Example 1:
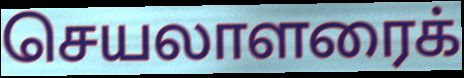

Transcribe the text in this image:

செயலாளரைக்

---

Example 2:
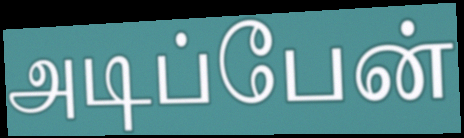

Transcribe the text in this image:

அடிப்பேன்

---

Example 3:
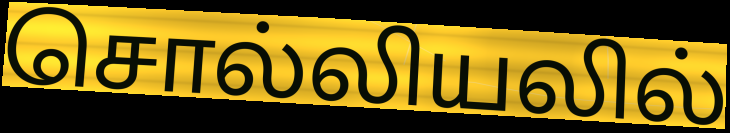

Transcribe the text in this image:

சொல்லியலில்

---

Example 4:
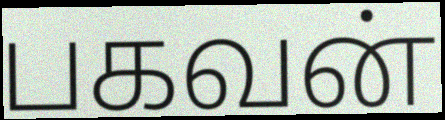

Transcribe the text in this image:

பகவன்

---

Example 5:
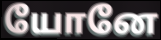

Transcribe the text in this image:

யோனே